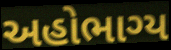
અહોભાગ્ય